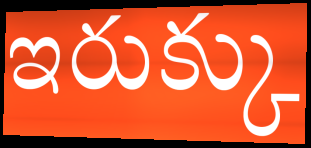
ఇరుక్కు